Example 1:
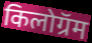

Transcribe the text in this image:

किलोग्रॅम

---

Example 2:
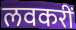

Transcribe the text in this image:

लवकरीं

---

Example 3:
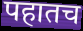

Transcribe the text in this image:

पहातच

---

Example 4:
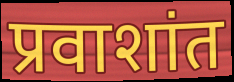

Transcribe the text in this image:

प्रवाशांत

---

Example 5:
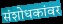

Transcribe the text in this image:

संशोधकांवर